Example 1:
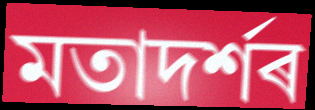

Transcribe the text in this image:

মতাদৰ্শৰ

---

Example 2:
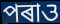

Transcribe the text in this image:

পৰাও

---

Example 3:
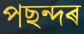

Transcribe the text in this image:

পছন্দৰ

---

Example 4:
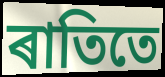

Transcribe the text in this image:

ৰাতিতে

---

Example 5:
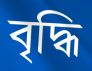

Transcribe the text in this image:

বৃদ্ধি